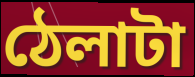
ঠেলাটা